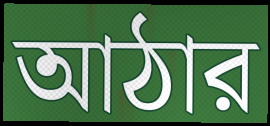
আঠার